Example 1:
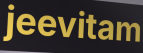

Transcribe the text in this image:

jeevitam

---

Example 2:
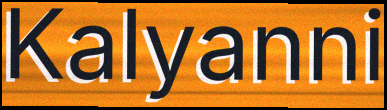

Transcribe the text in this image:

Kalyanni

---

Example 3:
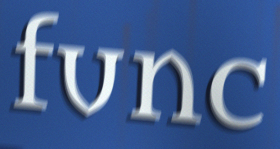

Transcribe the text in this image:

func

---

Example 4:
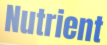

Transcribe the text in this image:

Nutrient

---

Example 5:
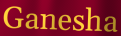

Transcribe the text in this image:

Ganesha